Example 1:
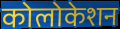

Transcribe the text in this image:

कोलोकेशन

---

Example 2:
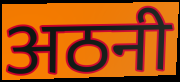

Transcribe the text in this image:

अठनी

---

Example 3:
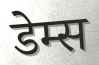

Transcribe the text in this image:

डेम्स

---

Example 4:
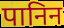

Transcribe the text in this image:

पानिन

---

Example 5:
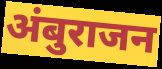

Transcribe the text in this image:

अंबुराजन